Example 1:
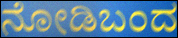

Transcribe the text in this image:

ನೋಡಿಬಂದ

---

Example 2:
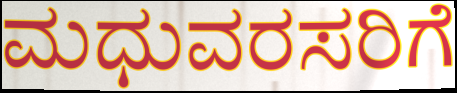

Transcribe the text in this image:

ಮಧುವರಸರಿಗೆ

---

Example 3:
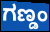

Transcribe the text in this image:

ಗಣ್ಡಂ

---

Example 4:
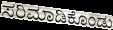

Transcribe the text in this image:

ಸರಿಮಾಡಿಕೊಂಡು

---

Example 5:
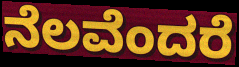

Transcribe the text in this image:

ನೆಲವೆಂದರೆ